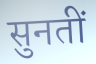
सुनतीं